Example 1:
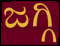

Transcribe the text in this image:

ಜಗ್ಗಿ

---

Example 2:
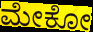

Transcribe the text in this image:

ಮೇಕೋ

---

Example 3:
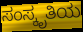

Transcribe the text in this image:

ಸಂಸ್ಕೃತಿಯ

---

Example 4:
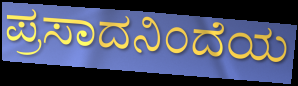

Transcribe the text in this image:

ಪ್ರಸಾದನಿಂದೆಯ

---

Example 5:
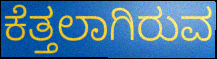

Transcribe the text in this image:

ಕೆತ್ತಲಾಗಿರುವ